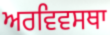
ਅਰਵਿਵਸਥਾ